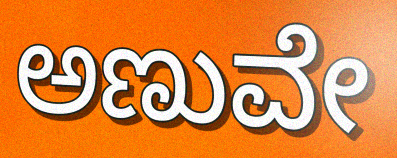
ಅಣುವೇ